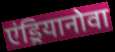
एंड्रियानोवा